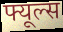
फ्यूल्स